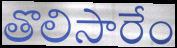
తొలిసారేం